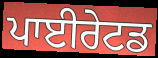
ਪਾਈਰੇਟਡ